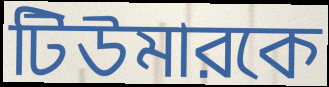
টিউমারকে